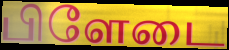
பிளேடை